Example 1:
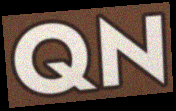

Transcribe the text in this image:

QN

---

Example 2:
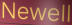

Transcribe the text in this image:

Newell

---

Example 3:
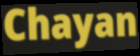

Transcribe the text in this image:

Chayan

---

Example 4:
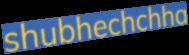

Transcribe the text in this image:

shubhechchha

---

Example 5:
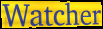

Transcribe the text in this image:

Watcher